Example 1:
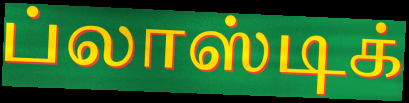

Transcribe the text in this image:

ப்லாஸ்டிக்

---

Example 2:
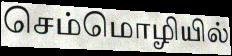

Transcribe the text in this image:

செம்மொழியில்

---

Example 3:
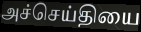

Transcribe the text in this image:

அச்செய்தியை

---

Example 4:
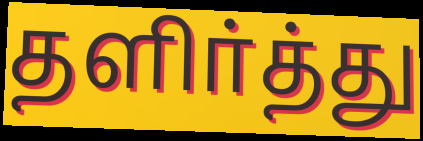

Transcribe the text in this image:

தளிர்த்து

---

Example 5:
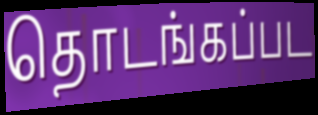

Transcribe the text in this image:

தொடங்கப்பட